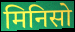
मिनिसो